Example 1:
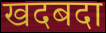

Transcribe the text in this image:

खदबदा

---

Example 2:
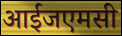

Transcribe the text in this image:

आईजएमसी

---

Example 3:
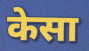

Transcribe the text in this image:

केसा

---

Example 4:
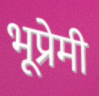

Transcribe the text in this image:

भूप्रेमी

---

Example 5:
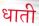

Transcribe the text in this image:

धाती